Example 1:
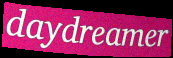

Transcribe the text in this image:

daydreamer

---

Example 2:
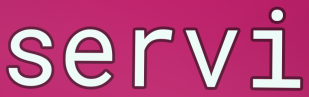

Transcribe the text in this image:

servi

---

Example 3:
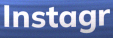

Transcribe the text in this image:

Instagr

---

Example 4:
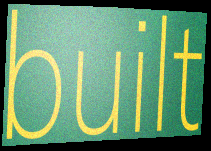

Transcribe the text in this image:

built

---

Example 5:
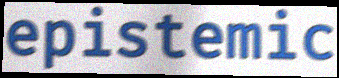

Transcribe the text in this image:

epistemic